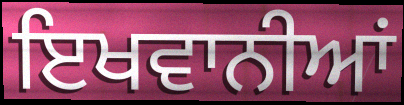
ਇਖਵਾਨੀਆਂ